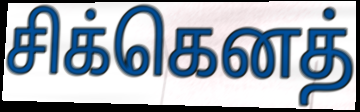
சிக்கெனத்